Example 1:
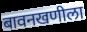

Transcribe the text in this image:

बावनखणीला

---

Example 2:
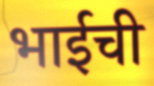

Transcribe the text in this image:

भाईची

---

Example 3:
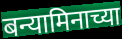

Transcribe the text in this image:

बन्यामिनाच्या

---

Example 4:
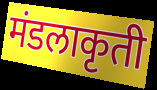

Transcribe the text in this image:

मंडलाकृती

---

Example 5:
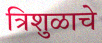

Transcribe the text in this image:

त्रिशुळाचे